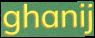
ghanij